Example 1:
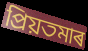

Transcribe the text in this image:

প্ৰিয়তমাৰ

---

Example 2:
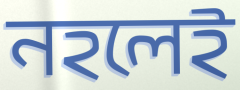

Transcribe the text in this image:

নহলেই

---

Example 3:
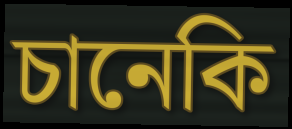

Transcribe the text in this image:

চানেকি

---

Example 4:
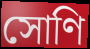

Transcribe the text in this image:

সোণি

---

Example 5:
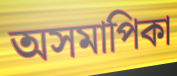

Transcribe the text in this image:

অসমাপিকা